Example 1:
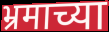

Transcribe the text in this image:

भ्रमाच्या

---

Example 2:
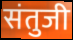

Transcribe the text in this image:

संतुजी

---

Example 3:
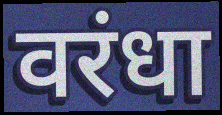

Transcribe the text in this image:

वरंधा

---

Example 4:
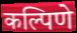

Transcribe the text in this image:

कल्पिणे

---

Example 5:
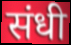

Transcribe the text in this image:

संधी